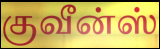
குவீன்ஸ்